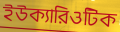
ইউক্যারিওটিক